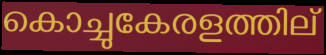
കൊച്ചുകേരളത്തില്